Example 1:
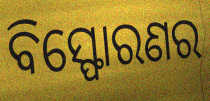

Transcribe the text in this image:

ବିସ୍ଫୋରଣର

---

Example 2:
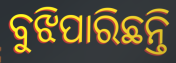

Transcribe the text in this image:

ବୁଝିପାରିଛନ୍ତି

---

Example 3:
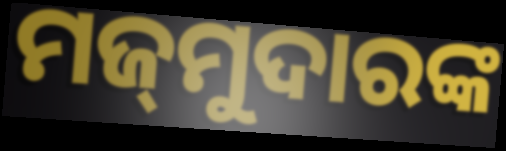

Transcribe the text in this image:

ମଜ୍‍ମୁଦାରଙ୍କ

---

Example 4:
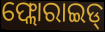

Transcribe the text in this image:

ଫ୍ଲୋରାଇଡ୍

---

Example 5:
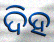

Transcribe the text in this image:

ଦିହ